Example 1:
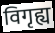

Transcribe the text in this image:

विगृह्य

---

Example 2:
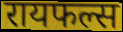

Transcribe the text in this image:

रायफल्स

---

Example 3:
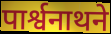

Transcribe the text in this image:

पार्श्वनाथने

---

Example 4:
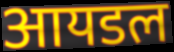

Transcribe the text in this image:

आयडल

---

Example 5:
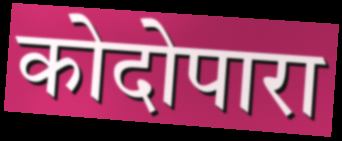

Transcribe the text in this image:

कोदोपारा